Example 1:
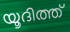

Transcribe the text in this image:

യൂദിത്ത്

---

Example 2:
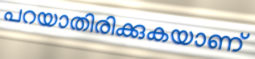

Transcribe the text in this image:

പറയാതിരിക്കുകയാണ്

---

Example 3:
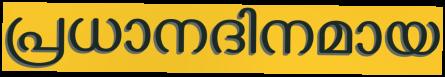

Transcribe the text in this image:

പ്രധാനദിനമായ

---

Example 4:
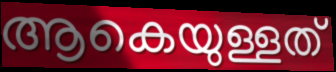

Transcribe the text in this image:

ആകെയുള്ളത്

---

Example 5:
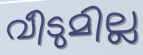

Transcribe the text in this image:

വീടുമില്ല